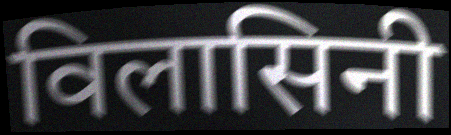
विलासिनी